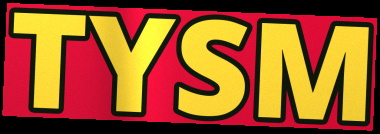
TYSM